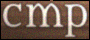
cmp